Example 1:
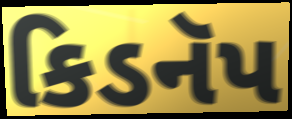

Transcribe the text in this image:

કિડનૅપ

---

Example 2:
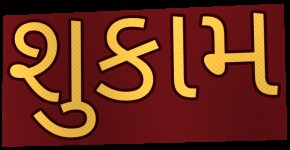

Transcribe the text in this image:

શુકામ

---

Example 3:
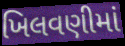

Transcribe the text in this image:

ખિલવણીમાં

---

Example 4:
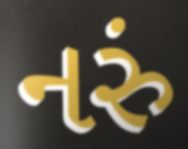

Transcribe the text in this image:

નરું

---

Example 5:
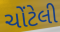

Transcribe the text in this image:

ચોંટેલી